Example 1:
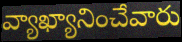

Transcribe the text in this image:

వ్యాఖ్యానించేవారు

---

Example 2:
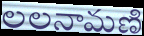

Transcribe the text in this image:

లలనామణి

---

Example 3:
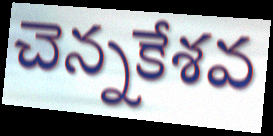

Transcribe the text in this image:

చెన్నకేశవ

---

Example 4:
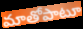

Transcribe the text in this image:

మాతోపాటూ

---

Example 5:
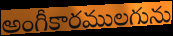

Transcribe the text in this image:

అంగీకారములగును